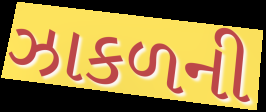
ઝાકળની